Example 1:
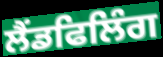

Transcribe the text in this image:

ਲੈਂਡਫਿਲਿੰਗ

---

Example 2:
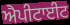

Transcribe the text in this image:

ਐਪੀਟਾਈਟ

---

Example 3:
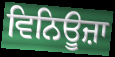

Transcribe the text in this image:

ਵਿਨਿਊਜ਼ਾ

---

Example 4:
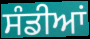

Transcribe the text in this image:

ਸੰਡੀਆਂ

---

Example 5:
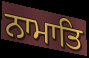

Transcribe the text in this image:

ਨਾਮਾਤਿ